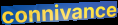
connivance